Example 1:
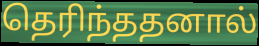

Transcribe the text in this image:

தெரிந்ததனால்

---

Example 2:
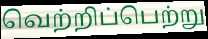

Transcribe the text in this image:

வெற்றிப்பெற்று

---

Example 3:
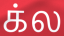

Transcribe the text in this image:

க்ல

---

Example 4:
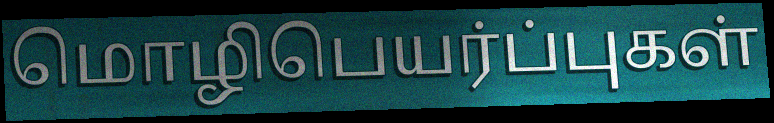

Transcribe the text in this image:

மொழிபெயர்ப்புகள்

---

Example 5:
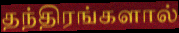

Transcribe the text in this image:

தந்திரங்களால்